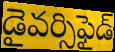
డైవర్సిఫైడ్